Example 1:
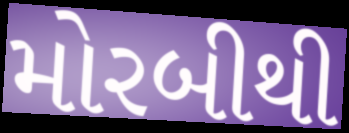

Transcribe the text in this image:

મોરબીથી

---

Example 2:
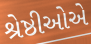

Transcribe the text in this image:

શ્રેષ્ઠીઓએ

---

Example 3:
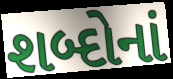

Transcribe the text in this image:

શબ્દોનાં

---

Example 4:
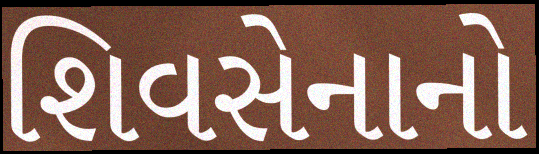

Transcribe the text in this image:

શિવસેનાનો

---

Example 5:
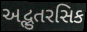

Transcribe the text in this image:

અદ્ભુતરસિક